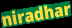
niradhar